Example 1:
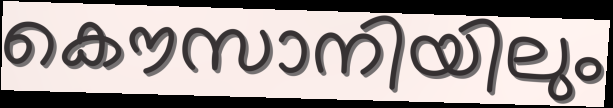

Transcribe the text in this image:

കൌസാനിയിലും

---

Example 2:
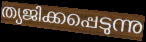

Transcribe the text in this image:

ത്യജിക്കപ്പെടുന്നു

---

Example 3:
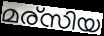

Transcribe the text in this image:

മര്സിയ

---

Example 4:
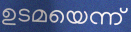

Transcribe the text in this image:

ഉടമയെന്ന്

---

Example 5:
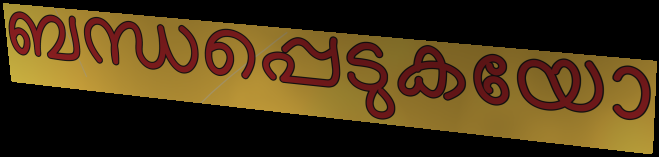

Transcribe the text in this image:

ബന്ധപ്പെടുകയോ